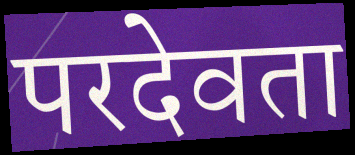
परदेवता